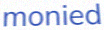
monied